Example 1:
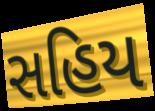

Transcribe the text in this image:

સહિય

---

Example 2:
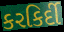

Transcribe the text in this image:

કરકિર્દી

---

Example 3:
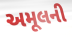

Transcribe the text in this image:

અમૂલની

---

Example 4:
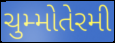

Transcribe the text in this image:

ચુમ્મોતેરમી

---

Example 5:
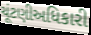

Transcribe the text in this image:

ચૂંટણીઅધિકારી